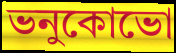
ভনুকোভো